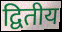
द्वितीय